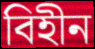
বিহীন